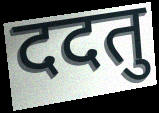
ददतु